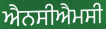
ਐਨਸੀਐਮਸੀ